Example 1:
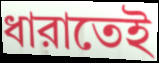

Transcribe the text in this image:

ধারাতেই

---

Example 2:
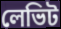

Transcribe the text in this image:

লেভিট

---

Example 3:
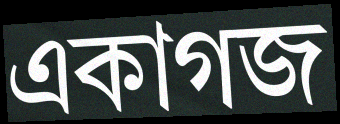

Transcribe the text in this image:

একাগজ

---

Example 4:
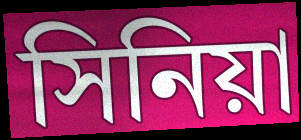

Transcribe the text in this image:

সিনিয়া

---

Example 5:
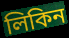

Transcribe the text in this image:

লিকিন